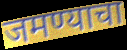
जमण्याचा